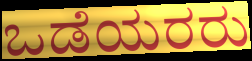
ಒಡೆಯರರು